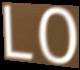
LO